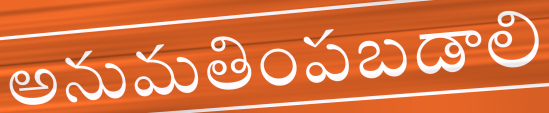
అనుమతింపబడాలి